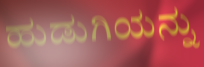
ಹುಡುಗಿಯನ್ನು